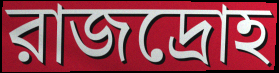
রাজদ্রোহ